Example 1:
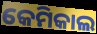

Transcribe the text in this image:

କେମିକାଲ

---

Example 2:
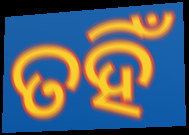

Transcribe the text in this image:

ତହିଁ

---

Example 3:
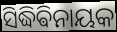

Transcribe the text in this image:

ସିଦ୍ଧିଵିନାୟକ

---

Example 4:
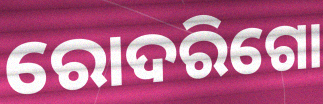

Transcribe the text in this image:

ରୋଦରିଗୋ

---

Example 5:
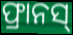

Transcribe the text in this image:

ଫ୍ରାନସ୍